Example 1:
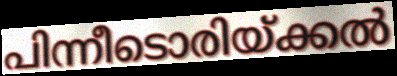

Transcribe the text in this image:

പിന്നീടൊരിയ്ക്കൽ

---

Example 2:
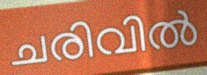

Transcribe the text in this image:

ചരിവിൽ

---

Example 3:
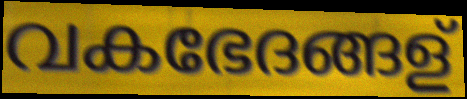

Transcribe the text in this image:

വകഭേദങ്ങള്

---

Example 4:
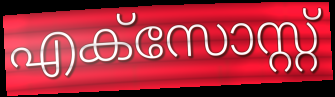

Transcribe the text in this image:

എക്സോസ്റ്റ്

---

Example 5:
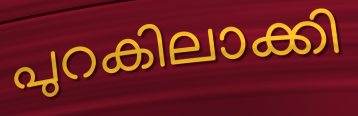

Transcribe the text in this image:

പുറകിലാക്കി